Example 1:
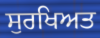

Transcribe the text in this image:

ਸੁਰਖਿਅਤ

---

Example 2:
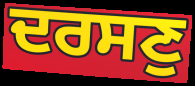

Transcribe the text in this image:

ਦਰਸਣੁ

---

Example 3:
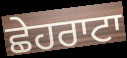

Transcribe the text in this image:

ਛੇਹਰਾਟਾ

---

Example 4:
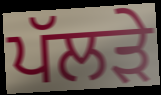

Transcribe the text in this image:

ਪੱਲੜੇ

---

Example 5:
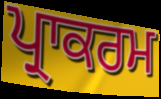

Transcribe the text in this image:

ਪ੍ਰਾਕਰਮ